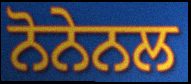
ਨੋਨੇਨਲ